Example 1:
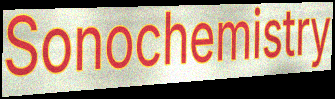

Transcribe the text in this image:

Sonochemistry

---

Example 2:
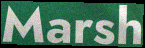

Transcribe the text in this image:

Marsh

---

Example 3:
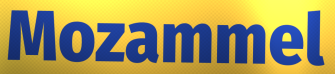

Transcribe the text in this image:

Mozammel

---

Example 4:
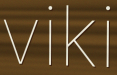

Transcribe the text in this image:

viki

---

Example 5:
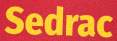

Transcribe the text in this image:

Sedrac